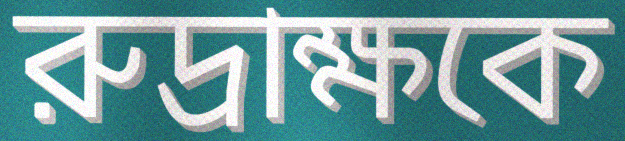
রুদ্রাক্ষকে